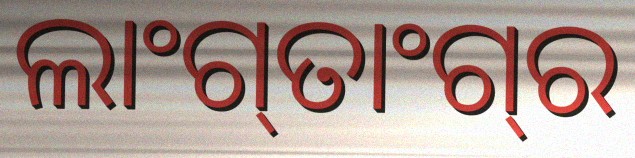
ଲାଂଗ୍‍ତାଂଗ୍‍ର